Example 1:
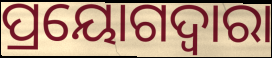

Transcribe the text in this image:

ପ୍ରୟୋଗଦ୍ୱାରା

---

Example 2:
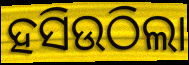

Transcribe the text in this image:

ହସିଉଠିଲା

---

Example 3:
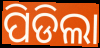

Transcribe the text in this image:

ପିଡିଲା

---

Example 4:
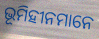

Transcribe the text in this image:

ଭୂମିହୀନମାନେ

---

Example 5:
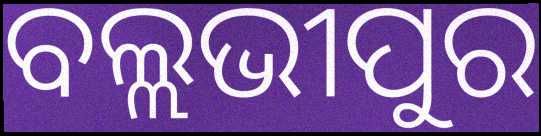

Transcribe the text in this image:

ବଲ୍ଲଭୀପୁର